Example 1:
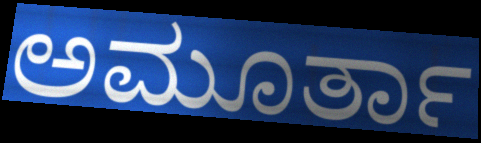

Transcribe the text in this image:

ಅಮೂರ್ತಾ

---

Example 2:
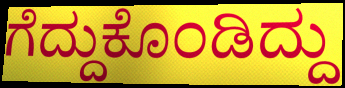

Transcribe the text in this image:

ಗೆದ್ದುಕೊಂಡಿದ್ದು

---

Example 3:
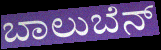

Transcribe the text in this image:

ಬಾಲುಬೆನ್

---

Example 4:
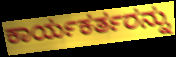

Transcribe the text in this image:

ಕಾರ್ಯಕರ್ತರನ್ನು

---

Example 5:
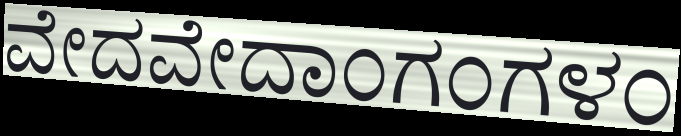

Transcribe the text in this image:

ವೇದವೇದಾಂಗಂಗಳಂ